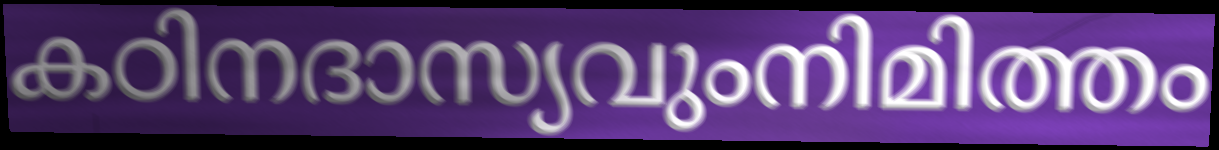
കഠിനദാസ്യവുംനിമിത്തം